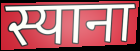
स्याना